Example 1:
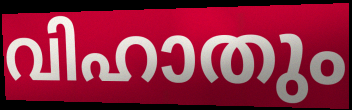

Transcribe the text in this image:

വിഹാതും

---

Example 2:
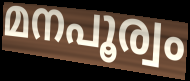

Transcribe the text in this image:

മനപൂര്വം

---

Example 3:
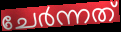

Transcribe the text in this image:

ചേർന്നത്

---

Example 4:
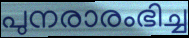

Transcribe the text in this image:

പുനരാരംഭിച്ച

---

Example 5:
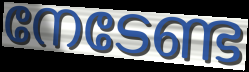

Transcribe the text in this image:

നേടേണ്ട